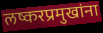
लष्करप्रमुखांना